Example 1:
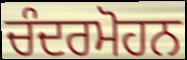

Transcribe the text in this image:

ਚੰਦਰਮੋਹਨ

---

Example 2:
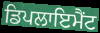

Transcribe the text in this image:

ਡਿਪਲਾਇਮੈਂਟ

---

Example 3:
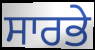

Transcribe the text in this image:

ਸਾਰਭੇ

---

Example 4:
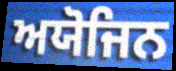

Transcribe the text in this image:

ਅਯੋਜਿਨ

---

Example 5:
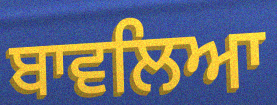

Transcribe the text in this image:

ਬਾਵਲਿਆ